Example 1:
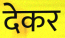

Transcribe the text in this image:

देकर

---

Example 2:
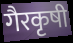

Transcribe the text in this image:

गैरकृषी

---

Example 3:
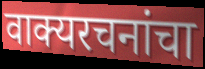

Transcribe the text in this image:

वाक्यरचनांचा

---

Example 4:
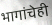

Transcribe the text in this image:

भागांचेही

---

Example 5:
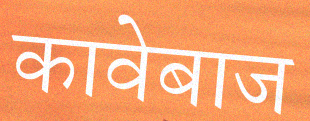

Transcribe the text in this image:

कावेबाज